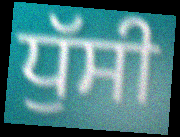
ਧੁੱਸੀ